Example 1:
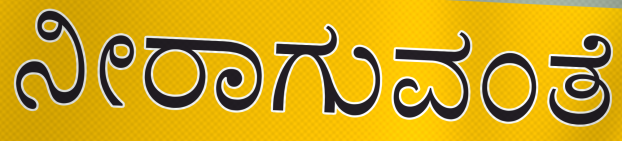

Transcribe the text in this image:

ನೀರಾಗುವಂತೆ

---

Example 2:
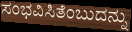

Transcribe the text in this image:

ಸಂಭವಿಸಿತೆಂಬುದನ್ನು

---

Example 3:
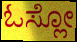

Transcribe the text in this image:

ಓಸ್ಲೋ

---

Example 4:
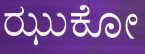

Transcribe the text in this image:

ಝುಕೋ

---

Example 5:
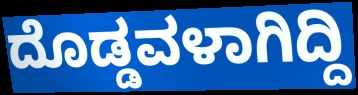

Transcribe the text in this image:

ದೊಡ್ಡವಳಾಗಿದ್ದಿ